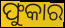
ଫୁକାର